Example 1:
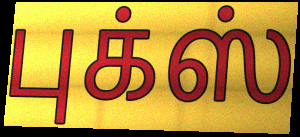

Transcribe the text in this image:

புக்ஸ்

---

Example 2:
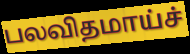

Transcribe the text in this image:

பலவிதமாய்ச்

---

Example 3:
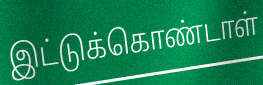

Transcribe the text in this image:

இட்டுக்கொண்டாள்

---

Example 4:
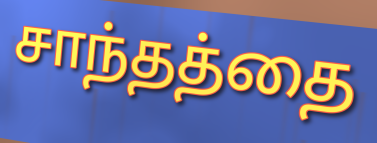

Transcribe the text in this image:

சாந்தத்தை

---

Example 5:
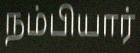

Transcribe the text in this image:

நம்பியார்